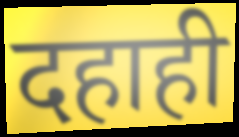
दहाही